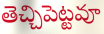
తెచ్చిపెట్టవూ